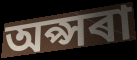
অপ্সৰা